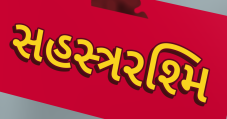
સહસ્ત્રરશ્મિ